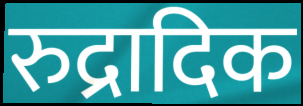
रुद्रादिक